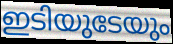
ഇടിയുടേയും